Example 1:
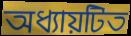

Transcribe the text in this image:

অধ্যায়টিত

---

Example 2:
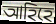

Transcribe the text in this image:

আহিহে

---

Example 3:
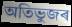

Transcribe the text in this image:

অতিভুজৰ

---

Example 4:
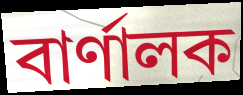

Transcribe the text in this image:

বাৰ্ণালক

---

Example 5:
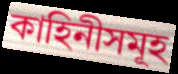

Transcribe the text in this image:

কাহিনীসমূহ